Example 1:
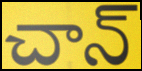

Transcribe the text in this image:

చాన్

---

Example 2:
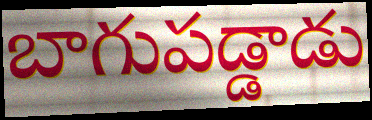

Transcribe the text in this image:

బాగుపడ్డాడు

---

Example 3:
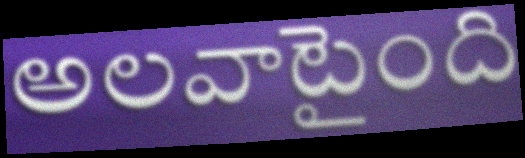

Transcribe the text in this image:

అలవాటైంది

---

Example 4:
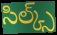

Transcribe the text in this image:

సిల్క్స్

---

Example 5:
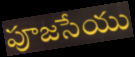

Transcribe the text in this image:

పూజసేయు